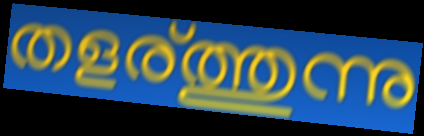
തളര്ത്തുന്നു